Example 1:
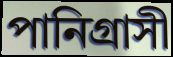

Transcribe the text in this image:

পানিগ্রাসী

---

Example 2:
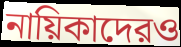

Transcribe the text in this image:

নায়িকাদেরও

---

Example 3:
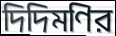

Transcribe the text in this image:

দিদিমণির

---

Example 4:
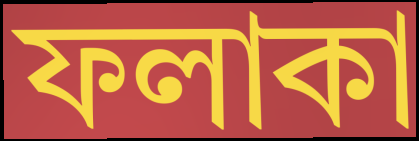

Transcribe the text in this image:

ফলাকা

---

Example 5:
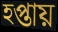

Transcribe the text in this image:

হপ্তায়